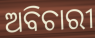
ଅବିଚାରୀ